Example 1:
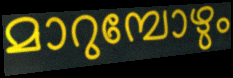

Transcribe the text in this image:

മാറുമ്പോഴും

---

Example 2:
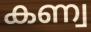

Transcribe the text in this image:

കണ്വ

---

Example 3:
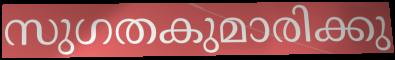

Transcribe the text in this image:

സുഗതകുമാരിക്കു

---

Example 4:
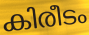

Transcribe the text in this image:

കിരീടം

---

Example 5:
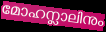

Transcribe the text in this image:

മോഹന്ലാലിനും